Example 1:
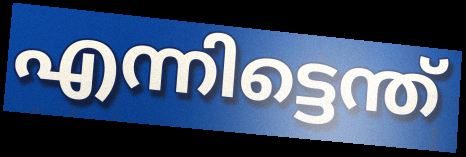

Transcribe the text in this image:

എന്നിട്ടെന്ത്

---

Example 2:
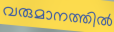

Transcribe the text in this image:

വരുമാനത്തിൽ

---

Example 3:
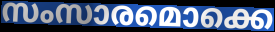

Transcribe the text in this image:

സംസാരമൊക്കെ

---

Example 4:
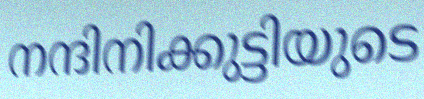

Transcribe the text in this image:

നന്ദിനിക്കുട്ടിയുടെ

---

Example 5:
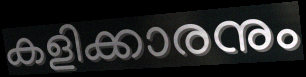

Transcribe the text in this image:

കളിക്കാരനും